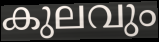
കുലവും